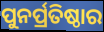
ପୁନର୍ପ୍ରତିଷ୍ଠାର